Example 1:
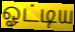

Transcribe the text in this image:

ஓட்டிய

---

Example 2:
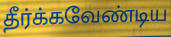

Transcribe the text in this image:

தீர்க்கவேண்டிய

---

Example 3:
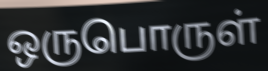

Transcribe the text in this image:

ஒருபொருள்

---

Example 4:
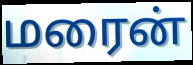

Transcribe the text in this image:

மரைன்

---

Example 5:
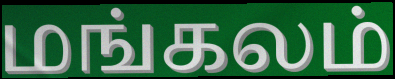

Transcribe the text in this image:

மங்கலம்